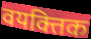
वयक्तिक